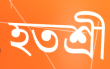
হতশ্রী